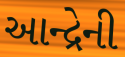
આન્દ્રેની